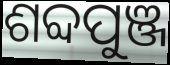
ଶବ୍ଦପୁଞ୍ଜ